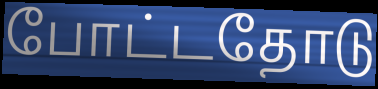
போட்டதோடு